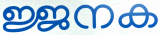
ജ്ജനക